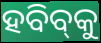
ହବିବ୍‌କୁ